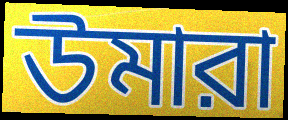
উমারা